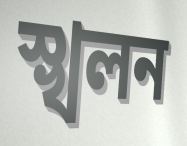
স্খলন